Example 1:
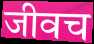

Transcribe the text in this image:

जीवच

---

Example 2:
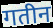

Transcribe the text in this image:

गतीन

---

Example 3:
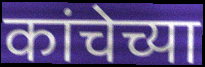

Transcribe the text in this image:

कांचेच्या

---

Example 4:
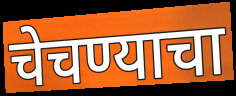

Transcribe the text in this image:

चेचण्याचा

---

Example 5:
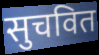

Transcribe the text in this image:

सुचवित